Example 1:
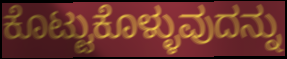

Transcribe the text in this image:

ಕೊಟ್ಟುಕೊಳ್ಳುವುದನ್ನು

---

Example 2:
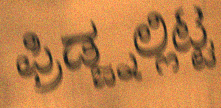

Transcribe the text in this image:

ಫ್ರಿಡ್ಜ್ನಲ್ಲಿಟ್ಟ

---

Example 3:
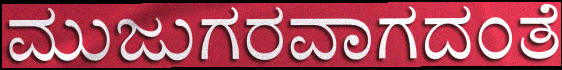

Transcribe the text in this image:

ಮುಜುಗರವಾಗದಂತೆ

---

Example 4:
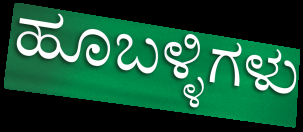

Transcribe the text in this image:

ಹೂಬಳ್ಳಿಗಳು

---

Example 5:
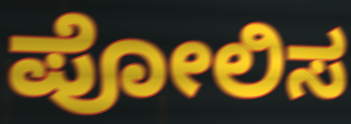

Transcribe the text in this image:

ಪೋಲಿಸ